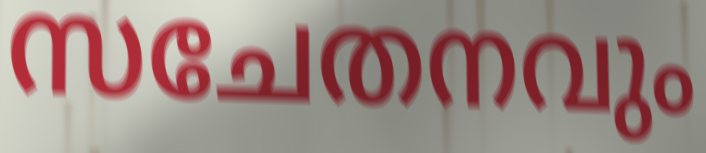
സചേതനവും